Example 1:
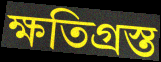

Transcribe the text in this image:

ক্ষতিগ্রস্ত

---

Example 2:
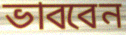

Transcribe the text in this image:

ভাববেন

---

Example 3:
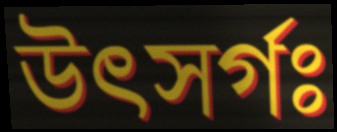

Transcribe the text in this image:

উৎসর্গঃ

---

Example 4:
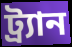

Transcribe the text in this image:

ট্র্যান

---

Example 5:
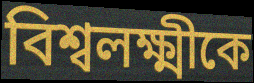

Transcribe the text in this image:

বিশ্বলক্ষ্মীকে